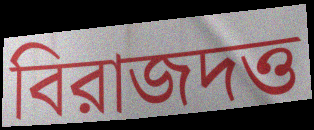
বিরাজদত্ত